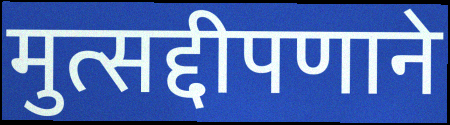
मुत्सद्दीपणाने